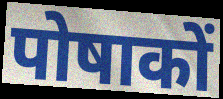
पोषाकों